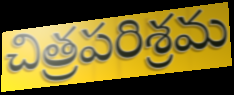
చిత్రపరిశ్రమ